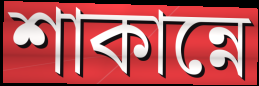
শাকান্নে